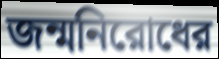
জন্মনিরোধের